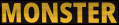
MONSTER